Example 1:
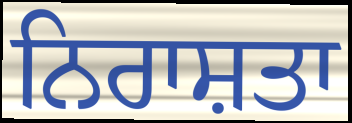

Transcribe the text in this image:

ਨਿਰਾਸ਼ਤਾ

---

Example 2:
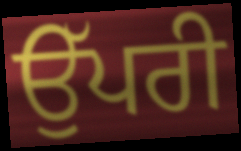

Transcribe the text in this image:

ਉੱਪਰੀ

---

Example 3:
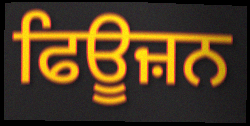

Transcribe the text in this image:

ਫਿਊਜ਼ਨ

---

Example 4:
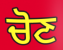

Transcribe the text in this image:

ਚੋਣ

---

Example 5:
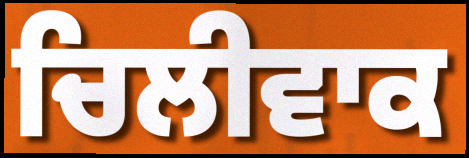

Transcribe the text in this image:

ਚਿਲੀਵਾਕ